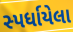
સ્પર્ધાયેલા